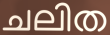
ചലിത